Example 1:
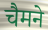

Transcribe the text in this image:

चैमने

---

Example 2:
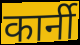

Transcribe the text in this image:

कार्नी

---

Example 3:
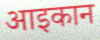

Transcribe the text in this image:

आइकान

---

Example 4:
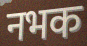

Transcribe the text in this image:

नभक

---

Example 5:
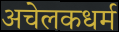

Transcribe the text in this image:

अचेलकधर्म